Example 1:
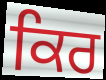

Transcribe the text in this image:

ਕਿਰ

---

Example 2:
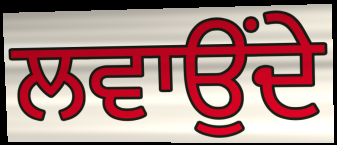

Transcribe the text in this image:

ਲਵਾਉਂਦੇ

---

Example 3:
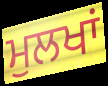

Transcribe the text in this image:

ਮੁਲਖਾਂ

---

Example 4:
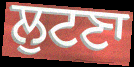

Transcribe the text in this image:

ਲੁਟਣਾ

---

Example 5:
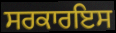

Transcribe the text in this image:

ਸਰਕਾਰਇਸ